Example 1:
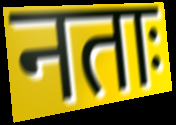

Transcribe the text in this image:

नताः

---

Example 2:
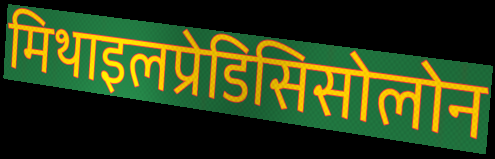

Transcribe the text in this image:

मिथाइलप्रेडिसिसोलोन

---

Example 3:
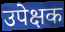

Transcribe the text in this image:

उपेक्षक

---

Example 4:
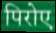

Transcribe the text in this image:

पिरोए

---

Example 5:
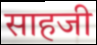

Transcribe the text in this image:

साहजी